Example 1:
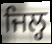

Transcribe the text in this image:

ਜਿਲ੍ਹ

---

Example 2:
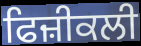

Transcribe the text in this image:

ਫਿਜ਼ੀਕਲੀ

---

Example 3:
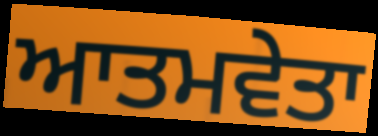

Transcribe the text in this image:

ਆਤਮਵੇਤਾ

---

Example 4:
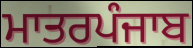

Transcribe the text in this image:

ਮਾਤਰਪੰਜਾਬ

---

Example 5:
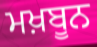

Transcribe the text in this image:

ਮਖ਼ਬੂਨ